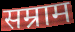
सम्राम